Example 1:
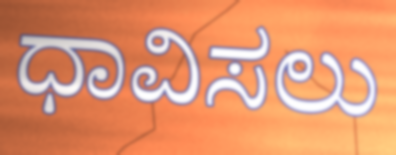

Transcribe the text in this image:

ಧಾವಿಸಲು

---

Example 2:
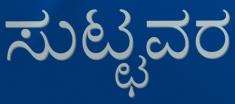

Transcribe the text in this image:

ಸುಟ್ಟವರ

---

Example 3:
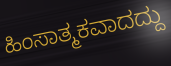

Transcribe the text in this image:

ಹಿಂಸಾತ್ಮಕವಾದದ್ದು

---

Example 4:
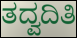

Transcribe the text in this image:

ತದ್ವದಿತಿ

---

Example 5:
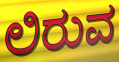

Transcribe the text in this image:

ಲಿರುವ